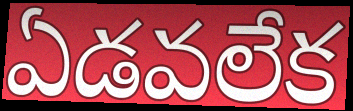
ఏడవలేక